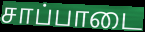
சாப்பாடை